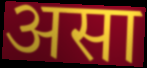
असा